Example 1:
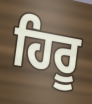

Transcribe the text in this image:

ਹਿਰੂ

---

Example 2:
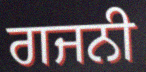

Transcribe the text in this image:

ਗਜਨੀ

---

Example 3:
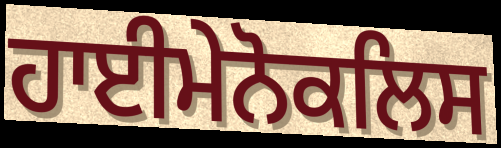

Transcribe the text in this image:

ਹਾਈਮੇਨੋਕਲਿਸ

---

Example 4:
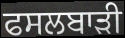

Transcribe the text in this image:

ਫਸਲਬਾੜੀ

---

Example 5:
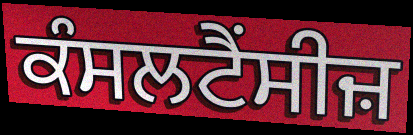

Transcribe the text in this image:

ਕੰਸਲਟੈਂਸੀਜ਼